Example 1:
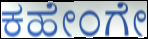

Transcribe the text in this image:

ಕಹೇಂಗೇ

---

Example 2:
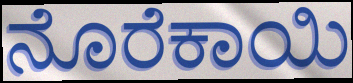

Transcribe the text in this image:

ನೊರೆಕಾಯಿ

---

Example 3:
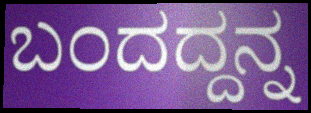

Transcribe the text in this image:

ಬಂದದ್ದನ್ನ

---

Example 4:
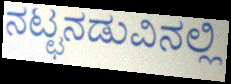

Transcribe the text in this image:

ನಟ್ಟನಡುವಿನಲ್ಲಿ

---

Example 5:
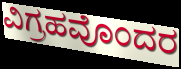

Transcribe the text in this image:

ವಿಗ್ರಹವೊಂದರ